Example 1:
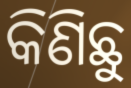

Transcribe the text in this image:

କିଣିଛୁ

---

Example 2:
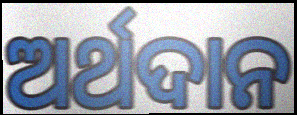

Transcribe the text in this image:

ଅର୍ଥଦାନ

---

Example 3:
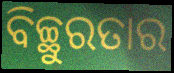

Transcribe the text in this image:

ବିଚ୍ଛୁରତାର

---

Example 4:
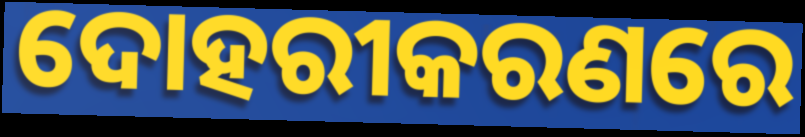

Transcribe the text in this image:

ଦୋହରୀକରଣରେ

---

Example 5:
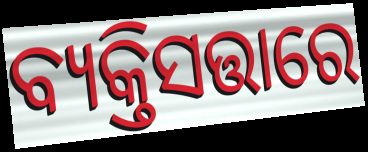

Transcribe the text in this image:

ବ୍ୟକ୍ତିସତ୍ତାରେ